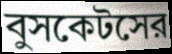
বুসকেটসের